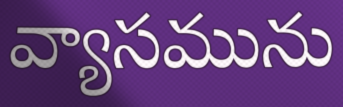
వ్యాసమును